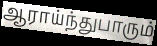
ஆராய்ந்துபாரும்